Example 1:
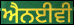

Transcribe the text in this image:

ਐਨਈਵੀ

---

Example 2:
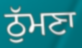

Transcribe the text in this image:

ਠੁੱਮਣਾ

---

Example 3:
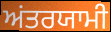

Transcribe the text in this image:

ਅਂਤਰਯਾਮੀ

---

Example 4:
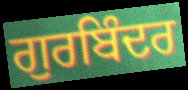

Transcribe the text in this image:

ਗੁਰਬਿੰਦਰ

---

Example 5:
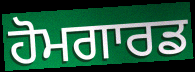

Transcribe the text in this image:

ਹੋਮਗਾਰਡ